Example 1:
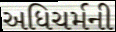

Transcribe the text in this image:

અધિચર્મની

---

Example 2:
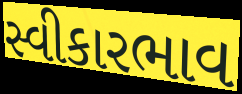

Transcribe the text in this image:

સ્વીકારભાવ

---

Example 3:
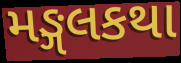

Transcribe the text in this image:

મઙ્ગલકથા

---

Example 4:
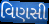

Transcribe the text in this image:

વિણસી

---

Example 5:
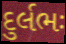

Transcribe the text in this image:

દુર્લભઃ